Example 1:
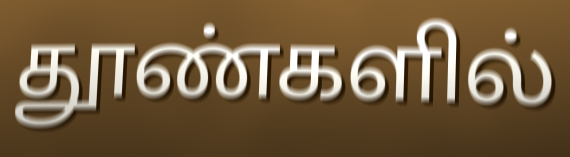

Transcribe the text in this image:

தூண்களில்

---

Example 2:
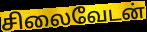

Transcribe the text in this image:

சிலைவேடன்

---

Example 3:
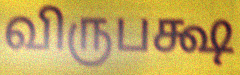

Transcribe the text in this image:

விருபக்ஷ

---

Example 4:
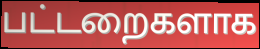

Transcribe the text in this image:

பட்டறைகளாக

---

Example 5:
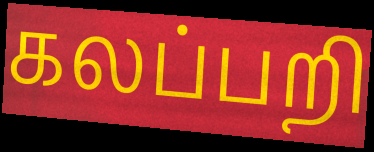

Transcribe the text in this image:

கலப்பறி